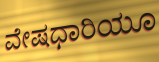
ವೇಷಧಾರಿಯೂ